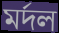
মর্দল